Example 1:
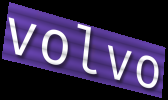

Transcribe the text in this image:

volvo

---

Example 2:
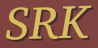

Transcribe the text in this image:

SRK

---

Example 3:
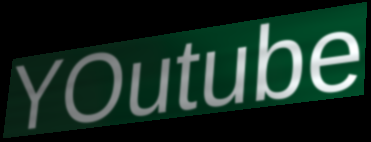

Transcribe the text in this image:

YOutube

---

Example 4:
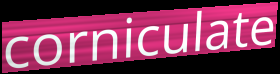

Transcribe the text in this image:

corniculate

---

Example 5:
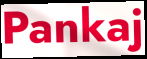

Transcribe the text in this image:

Pankaj